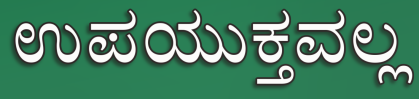
ಉಪಯುಕ್ತವಲ್ಲ